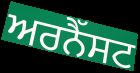
ਅਰਨੈੱਸਟ